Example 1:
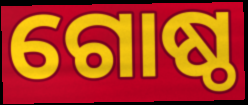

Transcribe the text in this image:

ଗୋଷ୍ଠ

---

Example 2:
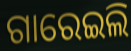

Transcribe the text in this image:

ଗାରେଇଲି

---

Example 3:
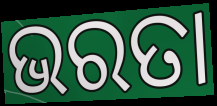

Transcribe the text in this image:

ଭରତା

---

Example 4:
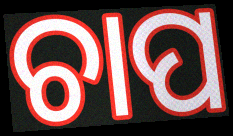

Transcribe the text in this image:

ଚାପ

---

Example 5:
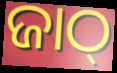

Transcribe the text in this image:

ଜାଠ୍